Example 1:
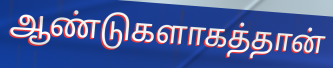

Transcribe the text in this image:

ஆண்டுகளாகத்தான்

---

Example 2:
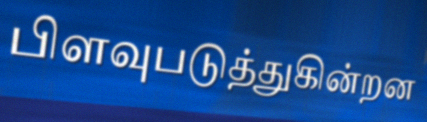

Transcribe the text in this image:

பிளவுபடுத்துகின்றன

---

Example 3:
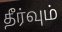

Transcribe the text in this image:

தீர்வும்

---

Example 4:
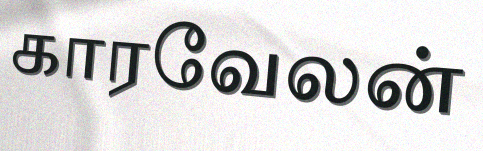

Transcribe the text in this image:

காரவேலன்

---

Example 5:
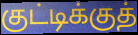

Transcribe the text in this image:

குட்டிக்குத்